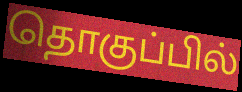
தொகுப்பில்